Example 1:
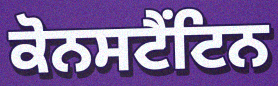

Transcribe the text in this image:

ਕੋਨਸਟੈਂਟਿਨ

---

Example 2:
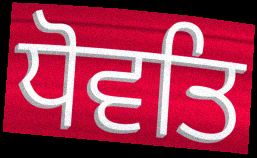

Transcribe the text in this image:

ਧੋਵਤਿ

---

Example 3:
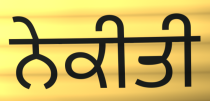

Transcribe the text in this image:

ਨੇਕੀਤੀ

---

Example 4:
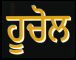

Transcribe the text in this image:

ਹੂਚੋਲ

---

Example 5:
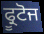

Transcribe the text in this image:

ਫ੍ਰੂਟੋਜ